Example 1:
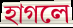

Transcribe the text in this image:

হাগলে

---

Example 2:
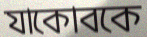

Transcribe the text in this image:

যাকোবকে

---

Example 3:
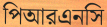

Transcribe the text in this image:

পিআরএনসি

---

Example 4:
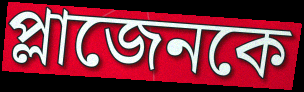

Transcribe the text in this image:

প্লাজেনকে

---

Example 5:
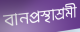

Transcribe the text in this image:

বানপ্রস্থাশ্রমী